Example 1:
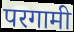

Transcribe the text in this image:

परगामी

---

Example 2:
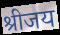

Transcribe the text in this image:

श्रीजय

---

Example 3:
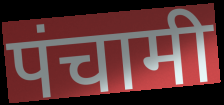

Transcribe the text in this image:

पंचामी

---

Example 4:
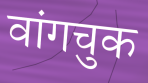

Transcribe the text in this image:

वांगचुक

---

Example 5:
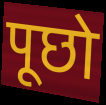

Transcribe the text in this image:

पूछो